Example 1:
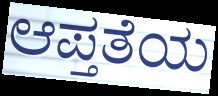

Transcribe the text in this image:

ಆಪ್ತತೆಯ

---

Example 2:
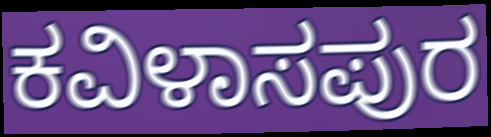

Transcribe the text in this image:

ಕವಿಳಾಸಪುರ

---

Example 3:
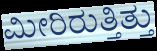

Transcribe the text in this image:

ಮೀರಿರುತ್ತಿತ್ತು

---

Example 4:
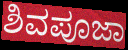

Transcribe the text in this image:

ಶಿವಪೂಜಾ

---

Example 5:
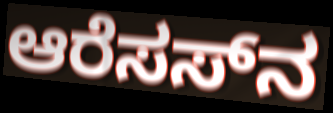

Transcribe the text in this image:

ಆರೆಸಸ್‌ನ